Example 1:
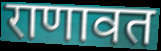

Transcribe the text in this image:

राणावत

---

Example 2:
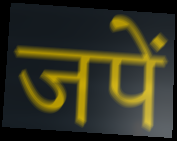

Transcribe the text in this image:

जपें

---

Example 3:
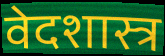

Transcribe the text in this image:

वेदशास्त्र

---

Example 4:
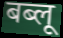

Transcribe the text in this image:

बब्लू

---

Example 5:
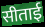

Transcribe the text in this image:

सीताई